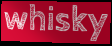
whisky